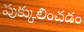
పుక్కులించడం